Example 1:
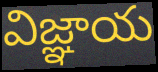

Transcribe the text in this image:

విజ్ఞాయ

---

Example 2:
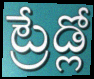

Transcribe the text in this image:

ట్రేడ్లో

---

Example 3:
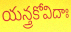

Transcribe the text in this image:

యన్త్రకోవిదాః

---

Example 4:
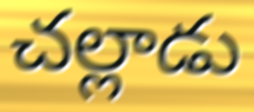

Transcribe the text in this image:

చల్లాడు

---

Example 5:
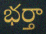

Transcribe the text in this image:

భర్తా